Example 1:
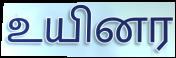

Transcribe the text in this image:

உயினர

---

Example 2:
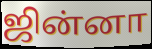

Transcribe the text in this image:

ஜின்னா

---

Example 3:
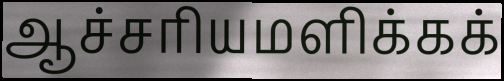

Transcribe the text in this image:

ஆச்சரியமளிக்கக்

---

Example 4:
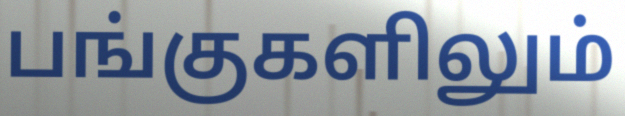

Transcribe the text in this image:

பங்குகளிலும்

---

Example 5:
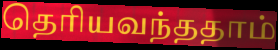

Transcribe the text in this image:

தெரியவந்ததாம்